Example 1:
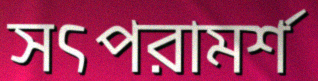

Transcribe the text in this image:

সৎপরামর্শ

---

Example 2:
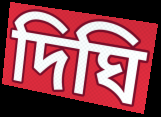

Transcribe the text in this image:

দিঘি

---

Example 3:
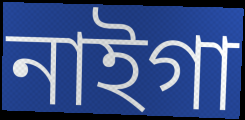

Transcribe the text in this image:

নাইগা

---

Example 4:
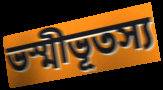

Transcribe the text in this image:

ভস্মীভূতস্য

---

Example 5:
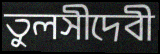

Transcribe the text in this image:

তুলসীদেবী